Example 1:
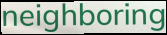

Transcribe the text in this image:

neighboring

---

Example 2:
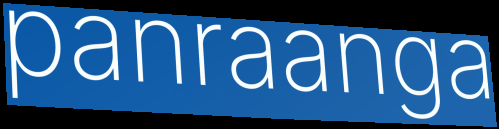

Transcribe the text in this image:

panraanga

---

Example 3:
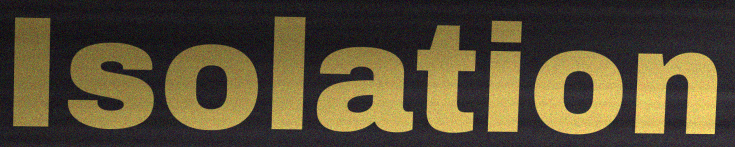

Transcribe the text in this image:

Isolation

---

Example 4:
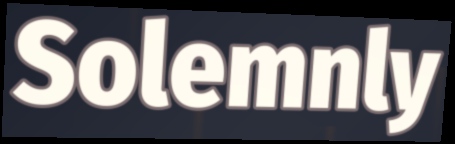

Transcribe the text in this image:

Solemnly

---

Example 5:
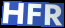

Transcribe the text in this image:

HFR